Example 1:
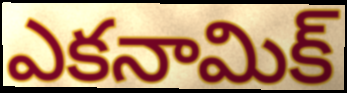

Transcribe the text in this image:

ఎకనామిక్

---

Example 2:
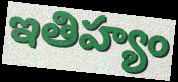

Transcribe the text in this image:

ఇతిహ్యం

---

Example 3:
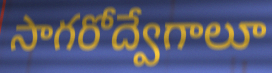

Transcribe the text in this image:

సాగరోద్వేగాలూ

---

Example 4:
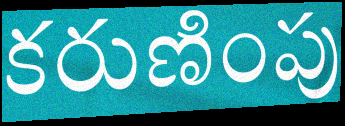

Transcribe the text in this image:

కరుణింపు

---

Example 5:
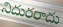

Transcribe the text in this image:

నిదురరాదు